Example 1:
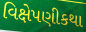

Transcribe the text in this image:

વિક્ષેપણીકથા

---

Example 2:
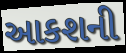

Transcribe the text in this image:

આકશની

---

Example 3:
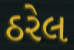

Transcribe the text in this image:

ઠરેલ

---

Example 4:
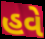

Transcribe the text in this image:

હવે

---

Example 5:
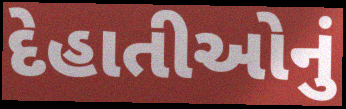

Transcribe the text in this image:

દેહાતીઓનું